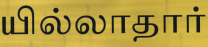
யில்லாதார்